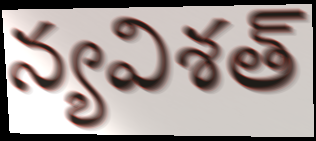
న్యవిశత్